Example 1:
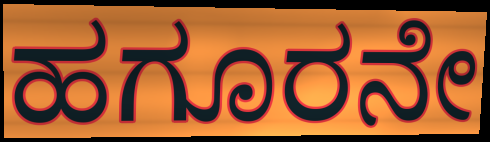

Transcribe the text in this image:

ಹಗೂರನೇ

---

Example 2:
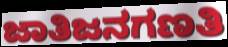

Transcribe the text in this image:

ಜಾತಿಜನಗಣತಿ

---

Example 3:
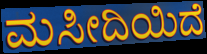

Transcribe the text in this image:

ಮಸೀದಿಯಿದೆ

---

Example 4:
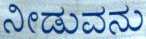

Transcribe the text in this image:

ನೀಡುವನು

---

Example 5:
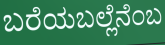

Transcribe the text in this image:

ಬರೆಯಬಲ್ಲೆನೆಂಬ